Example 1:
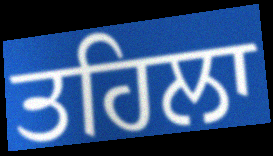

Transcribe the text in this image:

ਤਹਿਲਾ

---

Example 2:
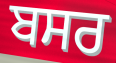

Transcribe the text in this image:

ਬਸਰ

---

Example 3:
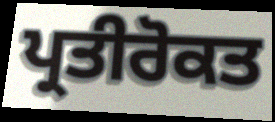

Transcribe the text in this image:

ਪ੍ਰਤੀਰੋਕਤ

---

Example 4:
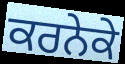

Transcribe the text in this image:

ਕਰਨੇਕੇ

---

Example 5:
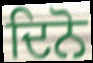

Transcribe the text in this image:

ਦਿਨੋ